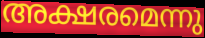
അക്ഷരമെന്നു